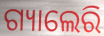
ଗ୍ୟାଲେରି